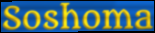
Soshoma